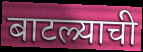
बाटल्याची